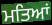
ਮਤਿਆਂ